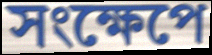
সংক্ষেপে